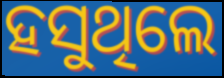
ହସୁଥିଲେ